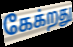
கேக்றது